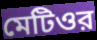
মেটিওর